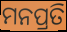
ମନପ୍ରତି